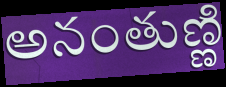
అనంతుణ్ణి